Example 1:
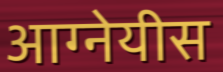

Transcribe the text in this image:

आग्नेयीस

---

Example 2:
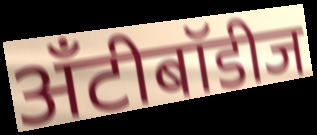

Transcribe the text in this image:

अँटीबॉडीज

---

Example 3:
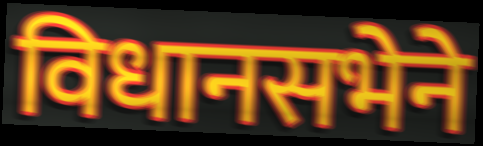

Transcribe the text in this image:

विधानसभेने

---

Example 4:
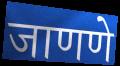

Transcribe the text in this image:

जाणणे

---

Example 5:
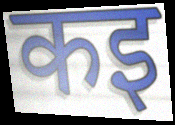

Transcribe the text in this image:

कइ